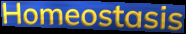
Homeostasis